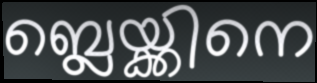
ബ്ലെയ്ക്കിനെ